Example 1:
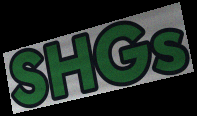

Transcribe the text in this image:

SHGs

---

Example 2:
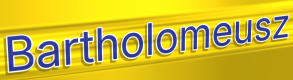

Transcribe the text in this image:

Bartholomeusz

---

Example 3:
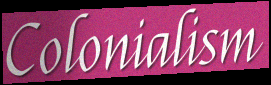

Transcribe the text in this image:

Colonialism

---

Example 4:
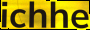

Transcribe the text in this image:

ichhe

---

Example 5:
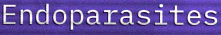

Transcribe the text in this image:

Endoparasites